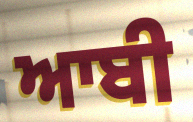
ਆਬੀ